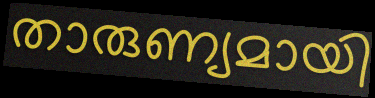
താരുണ്യമായി